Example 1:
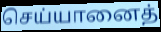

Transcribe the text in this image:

செய்யானைத்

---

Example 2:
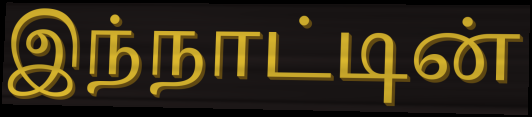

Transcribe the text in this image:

இந்நாட்டின்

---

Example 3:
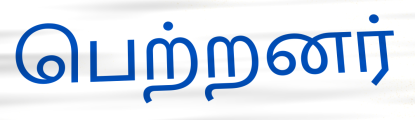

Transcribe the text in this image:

பெற்றனர்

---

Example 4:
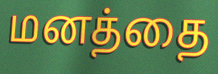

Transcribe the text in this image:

மனத்தை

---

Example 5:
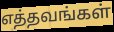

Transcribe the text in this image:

எத்தவங்கள்